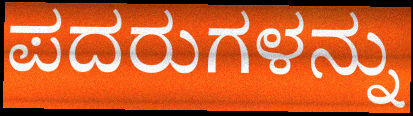
ಪದರುಗಳನ್ನು